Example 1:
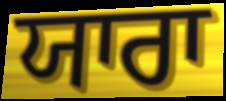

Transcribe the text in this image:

ਯਾਰਾ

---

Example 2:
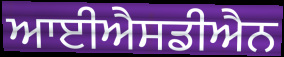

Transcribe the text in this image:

ਆਈਐਸਡੀਐਨ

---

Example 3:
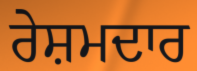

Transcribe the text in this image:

ਰੇਸ਼ਮਦਾਰ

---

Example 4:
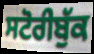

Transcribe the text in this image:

ਸਟੋਰੀਬੁੱਕ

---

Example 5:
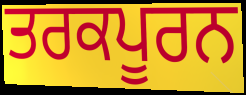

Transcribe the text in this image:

ਤਰਕਪੂਰਨ